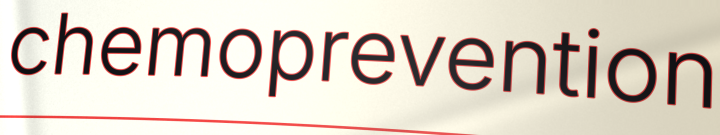
chemoprevention